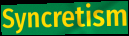
Syncretism